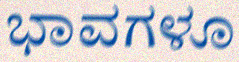
ಭಾವಗಳೂ